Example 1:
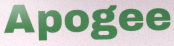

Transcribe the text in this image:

Apogee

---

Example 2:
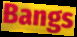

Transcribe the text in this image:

Bangs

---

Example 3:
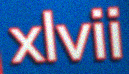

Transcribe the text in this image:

xlvii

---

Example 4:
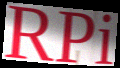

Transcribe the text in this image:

RPi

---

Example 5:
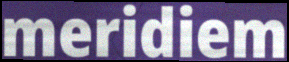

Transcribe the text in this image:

meridiem